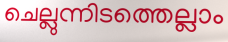
ചെല്ലുന്നിടത്തെല്ലാം